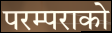
परम्पराको